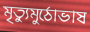
মৃত্যুমুঠোভাষ